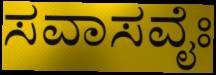
ಸವಾಸವೈಃ